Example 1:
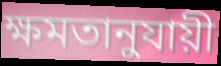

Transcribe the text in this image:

ক্ষমতানুযায়ী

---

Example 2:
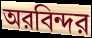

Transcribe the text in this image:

অরবিন্দর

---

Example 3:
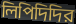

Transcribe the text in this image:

লিপিদিদির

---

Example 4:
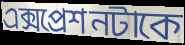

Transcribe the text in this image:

এক্সপ্রেশনটাকে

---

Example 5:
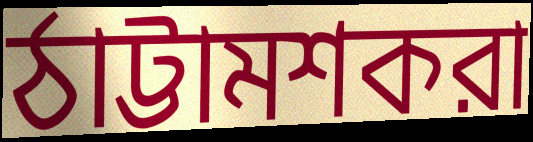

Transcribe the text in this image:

ঠাট্টামশকরা